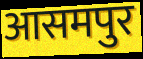
आसमपुर